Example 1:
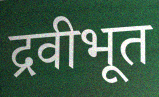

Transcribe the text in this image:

द्रवीभूत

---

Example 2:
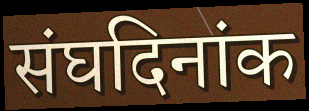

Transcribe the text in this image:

संघदिनांक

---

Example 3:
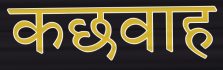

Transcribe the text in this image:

कछवाह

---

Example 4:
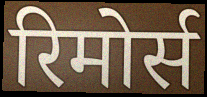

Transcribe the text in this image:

रिमोर्स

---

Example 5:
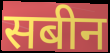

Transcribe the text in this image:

सबीन